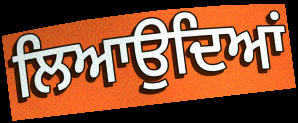
ਲਿਆਉਦਿਆਂ